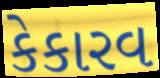
કેકારવ